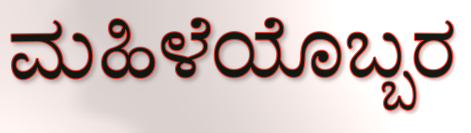
ಮಹಿಳೆಯೊಬ್ಬರ